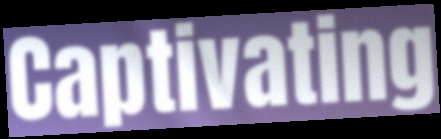
Captivating